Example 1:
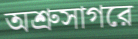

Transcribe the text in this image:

অশ্রুসাগরে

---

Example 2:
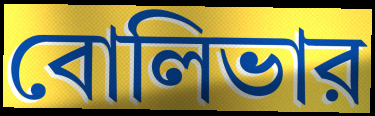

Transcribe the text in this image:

বোলিভার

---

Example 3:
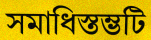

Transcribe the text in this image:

সমাধিস্তম্ভটি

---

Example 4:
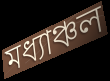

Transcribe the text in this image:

মধ্যাঞ্চল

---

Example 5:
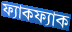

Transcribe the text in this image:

ফ্যাকফ্যাক